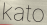
kato